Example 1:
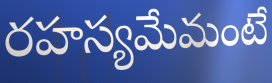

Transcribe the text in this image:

రహస్యమేమంటే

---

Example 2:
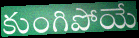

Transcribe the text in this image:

కుంగిపోయే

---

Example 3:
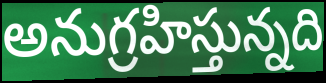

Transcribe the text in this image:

అనుగ్రహిస్తున్నది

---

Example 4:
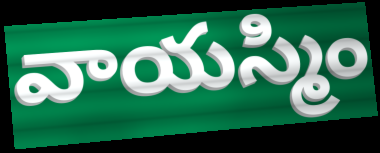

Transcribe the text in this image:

వాయస్మిం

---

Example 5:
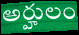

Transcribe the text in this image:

అర్హులం